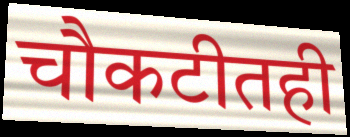
चौकटीतही